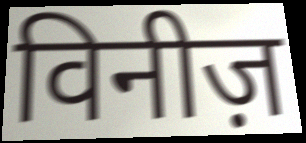
विनीज़